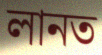
লানত